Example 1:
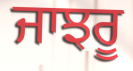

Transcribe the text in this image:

ਜਾਝਰੂ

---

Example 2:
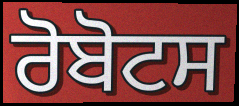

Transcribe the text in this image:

ਰੋਬੋਟਸ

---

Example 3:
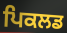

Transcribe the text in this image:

ਪਿਕਲਡ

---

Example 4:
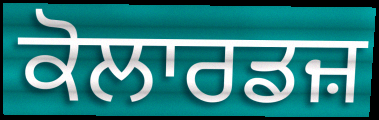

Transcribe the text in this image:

ਕੋਲਾਰਡਜ਼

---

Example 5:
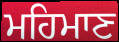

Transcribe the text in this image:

ਮਹਿਮਾਣ